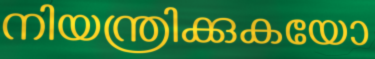
നിയന്ത്രിക്കുകയോ